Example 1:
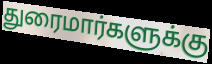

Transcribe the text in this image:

துரைமார்களுக்கு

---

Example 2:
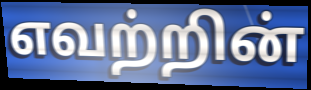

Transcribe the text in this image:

எவற்றின்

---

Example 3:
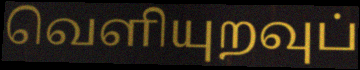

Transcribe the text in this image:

வெளியுறவுப்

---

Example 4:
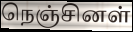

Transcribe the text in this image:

நெஞ்சினள்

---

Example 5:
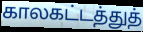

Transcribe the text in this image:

காலகட்டத்துத்